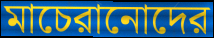
মাচেরানোদের